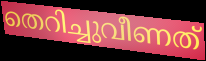
തെറിച്ചുവീണത്